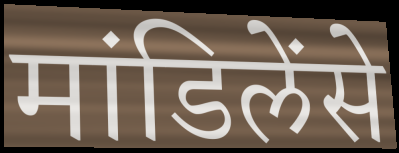
मांडिलेंसे